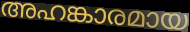
അഹങ്കാരമായ